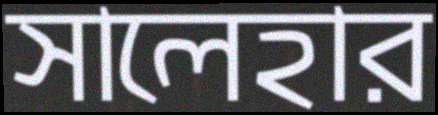
সালেহার